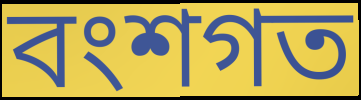
বংশগত